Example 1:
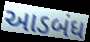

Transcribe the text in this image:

આડબંધ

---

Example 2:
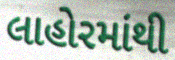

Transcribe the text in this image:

લાહોરમાંથી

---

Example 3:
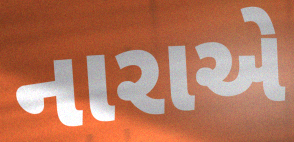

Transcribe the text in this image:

નારાએ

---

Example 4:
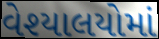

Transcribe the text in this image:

વેશ્યાલયોમાં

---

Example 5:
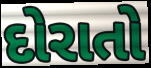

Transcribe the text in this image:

દોરાતો